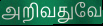
அறிவதுவே